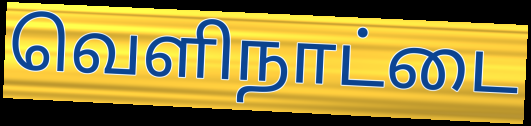
வெளிநாட்டை